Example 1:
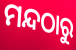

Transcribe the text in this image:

ମନ୍ଦଠାରୁ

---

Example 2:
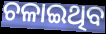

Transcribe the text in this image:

ଚଳାଇଥିବ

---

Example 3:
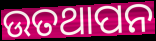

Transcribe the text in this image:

ଉତଥାପନ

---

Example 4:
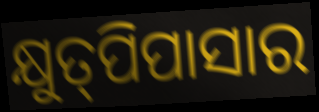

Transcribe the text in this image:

କ୍ଷୁତ୍‍ପିପାସାର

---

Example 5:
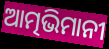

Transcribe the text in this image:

ଆତ୍ମଭିମାନୀ